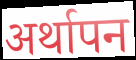
अर्थापन